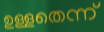
ഉള്ളതെന്ന്